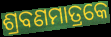
ଶ୍ରବଣମାତ୍ରକେ